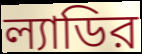
ল্যাডির